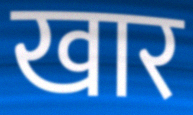
खार